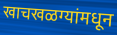
खाचखळग्यांमधून